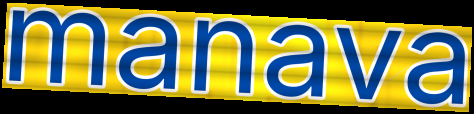
manava